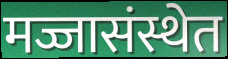
मज्जासंस्थेत